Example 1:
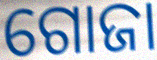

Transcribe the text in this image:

ଗୋଜା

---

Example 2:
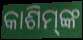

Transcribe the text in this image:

କାଶିମ୍‍ଙ୍କ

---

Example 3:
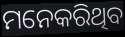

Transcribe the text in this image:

ମନେକରିଥିବ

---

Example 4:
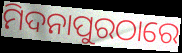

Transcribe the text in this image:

ମିଦନାପୁରଠାରେ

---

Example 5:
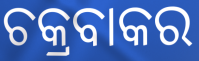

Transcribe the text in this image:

ଚକ୍ରବାକର